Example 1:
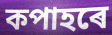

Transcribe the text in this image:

কপাহৰে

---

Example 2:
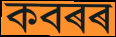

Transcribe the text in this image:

কবৰৰ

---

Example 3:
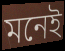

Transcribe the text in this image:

মনেই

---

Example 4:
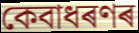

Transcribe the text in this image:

কেবাধৰণৰ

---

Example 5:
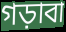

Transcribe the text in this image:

গড়াবা